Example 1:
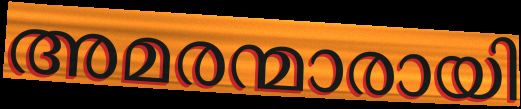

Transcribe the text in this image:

അമരന്മാരായി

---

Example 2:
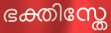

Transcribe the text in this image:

ഭക്തിസ്തേ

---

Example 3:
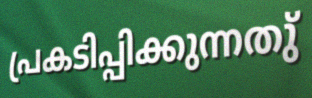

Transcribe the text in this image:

പ്രകടിപ്പിക്കുന്നതു്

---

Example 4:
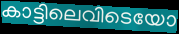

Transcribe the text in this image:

കാട്ടിലെവിടെയോ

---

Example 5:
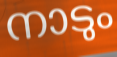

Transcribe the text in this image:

നാടും